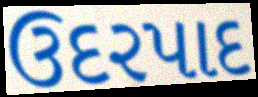
ઉદરપાદ